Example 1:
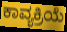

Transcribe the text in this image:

ಕಾವ್ಯಕ್ರಿಯೆ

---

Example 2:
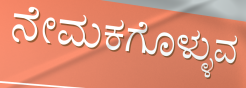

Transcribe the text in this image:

ನೇಮಕಗೊಳ್ಳುವ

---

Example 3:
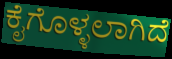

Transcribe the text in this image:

ಕೈಗೊಳ್ಳಲಾಗಿದೆ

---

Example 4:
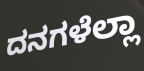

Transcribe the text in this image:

ದನಗಳೆಲ್ಲಾ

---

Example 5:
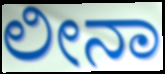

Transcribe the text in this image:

ಲೀನಾ